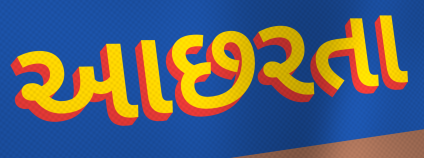
આછરતા